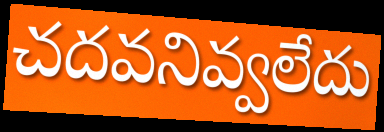
చదవనివ్వలేదు